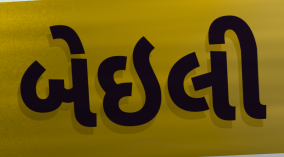
બેઇલી